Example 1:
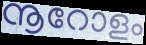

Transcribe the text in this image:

നൂറോളം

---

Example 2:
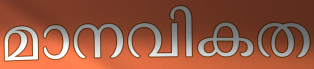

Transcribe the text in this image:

മാനവികത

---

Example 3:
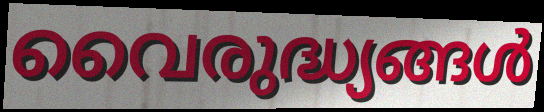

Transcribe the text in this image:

വൈരുദ്ധ്യങ്ങൾ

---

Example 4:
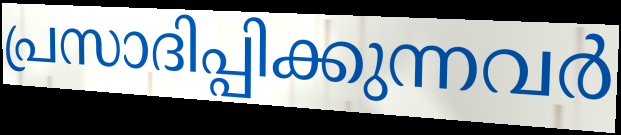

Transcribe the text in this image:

പ്രസാദിപ്പിക്കുന്നവർ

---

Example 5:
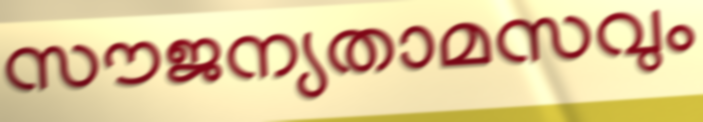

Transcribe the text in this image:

സൗജന്യതാമസവും